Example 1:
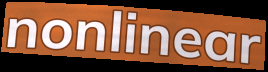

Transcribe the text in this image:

nonlinear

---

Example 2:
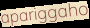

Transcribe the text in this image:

apariggaho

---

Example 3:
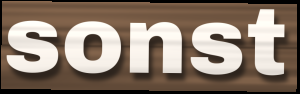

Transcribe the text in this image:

sonst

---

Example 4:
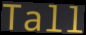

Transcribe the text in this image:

Tall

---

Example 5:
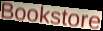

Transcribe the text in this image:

Bookstore